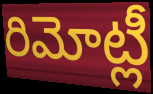
రిమోట్లీ